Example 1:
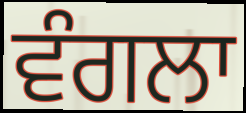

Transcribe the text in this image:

ਵੰਗਲਾ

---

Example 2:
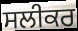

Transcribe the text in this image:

ਸਲੀਕਰ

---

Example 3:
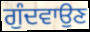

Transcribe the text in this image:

ਗੁੰਦਵਾਉਣ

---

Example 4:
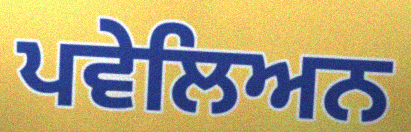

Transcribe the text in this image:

ਪਵੇਲਿਅਨ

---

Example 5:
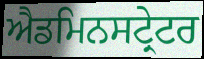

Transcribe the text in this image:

ਐਡਮਿਨਸਟ੍ਰੇਟਰ